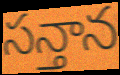
సన్తాన